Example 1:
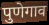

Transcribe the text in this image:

पुणेगाव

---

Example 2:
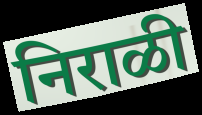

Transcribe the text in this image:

निराळी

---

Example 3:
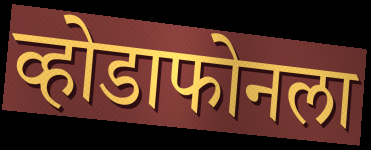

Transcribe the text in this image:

व्होडाफोनला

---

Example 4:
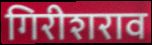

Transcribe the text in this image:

गिरीशराव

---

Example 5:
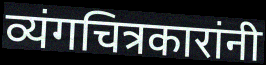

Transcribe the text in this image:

व्यंगचित्रकारांनी